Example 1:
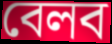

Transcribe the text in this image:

বেলব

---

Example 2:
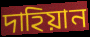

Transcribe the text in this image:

দাহিয়ান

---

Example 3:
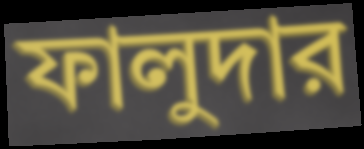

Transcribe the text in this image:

ফালুদার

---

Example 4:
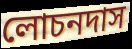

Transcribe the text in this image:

লোচনদাস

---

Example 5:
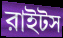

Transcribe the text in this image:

রাইটস